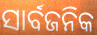
ସାର୍ବଜନିକ